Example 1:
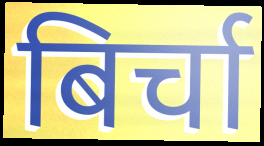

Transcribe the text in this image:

बिर्चा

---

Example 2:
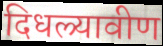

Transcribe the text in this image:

दिधल्यावीण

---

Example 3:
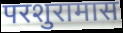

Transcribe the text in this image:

परशुरामास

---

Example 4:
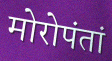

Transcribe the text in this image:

मोरोपंतां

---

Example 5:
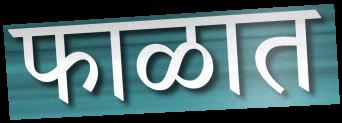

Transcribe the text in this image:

फाळात